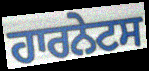
ਹਾਰਨੇਟਸ